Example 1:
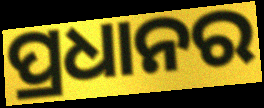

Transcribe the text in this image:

ପ୍ରଧାନର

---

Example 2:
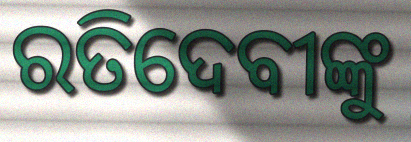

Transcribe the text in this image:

ରତିଦେବୀଙ୍କୁ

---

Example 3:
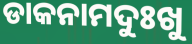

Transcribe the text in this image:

ଡାକନାମଦୁଃଖୁ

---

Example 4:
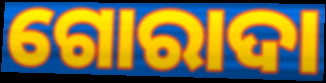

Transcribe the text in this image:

ଗୋରାଦା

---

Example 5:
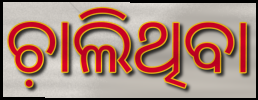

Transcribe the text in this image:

ଚ଼ାଲିଥିବା